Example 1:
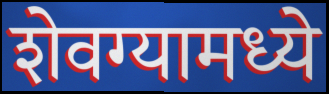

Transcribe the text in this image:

शेवग्यामध्ये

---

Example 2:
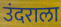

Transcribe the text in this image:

उंदराला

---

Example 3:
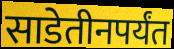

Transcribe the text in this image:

साडेतीनपर्यंत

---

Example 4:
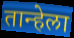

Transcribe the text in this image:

तान्हेला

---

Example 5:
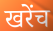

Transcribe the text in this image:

खरेंच